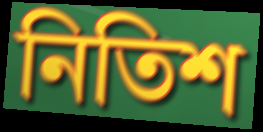
নিতিশ